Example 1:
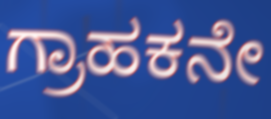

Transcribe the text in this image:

ಗ್ರಾಹಕನೇ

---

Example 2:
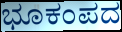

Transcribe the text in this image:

ಭೂಕಂಪದ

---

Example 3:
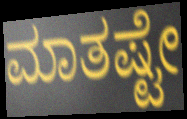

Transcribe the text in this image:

ಮಾತಷ್ಟೇ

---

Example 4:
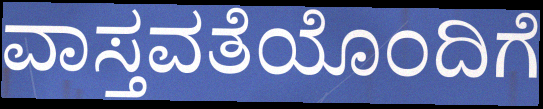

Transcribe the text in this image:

ವಾಸ್ತವತೆಯೊಂದಿಗೆ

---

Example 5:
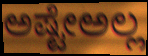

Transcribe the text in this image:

ಅಷ್ಟೇಅಲ್ಲ